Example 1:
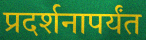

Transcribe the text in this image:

प्रदर्शनापर्यंत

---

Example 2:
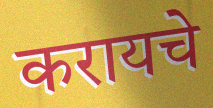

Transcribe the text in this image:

करायचे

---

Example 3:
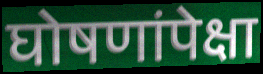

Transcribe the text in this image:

घोषणांपेक्षा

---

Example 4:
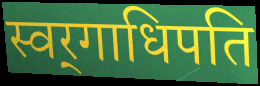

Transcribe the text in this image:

स्वर्गाधिपति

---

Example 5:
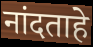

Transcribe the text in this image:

नांदताहे